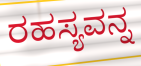
ರಹಸ್ಯವನ್ನ